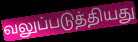
வலுப்படுத்தியது